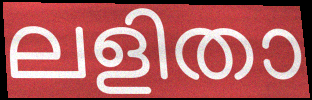
ലളിതാ